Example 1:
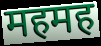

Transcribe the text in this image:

महमह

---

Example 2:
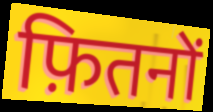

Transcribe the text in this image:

फ़ितनों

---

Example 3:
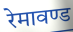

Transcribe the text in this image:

रेमावण्ड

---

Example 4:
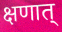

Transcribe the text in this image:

क्षणात्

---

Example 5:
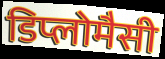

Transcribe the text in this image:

डिप्लोमैसी